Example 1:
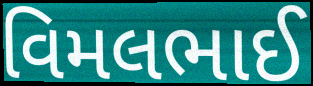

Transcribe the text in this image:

વિમલભાઈ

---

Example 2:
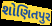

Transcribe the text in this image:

શોણિતપુર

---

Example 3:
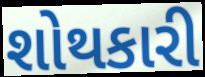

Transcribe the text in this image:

શોથકારી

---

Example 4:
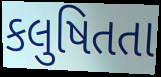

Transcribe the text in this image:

કલુષિતતા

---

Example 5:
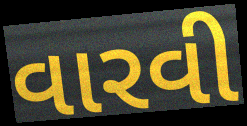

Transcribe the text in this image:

વારવી